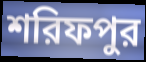
শরিফপুর